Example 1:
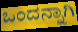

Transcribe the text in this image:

ಒಂದನ್ನಾಗಿ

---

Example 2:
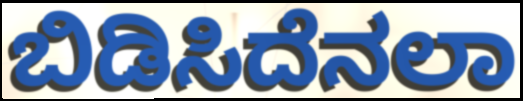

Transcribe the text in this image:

ಬಿಡಿಸಿದೆನಲಾ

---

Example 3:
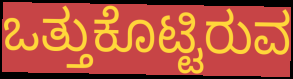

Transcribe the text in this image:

ಒತ್ತುಕೊಟ್ಟಿರುವ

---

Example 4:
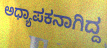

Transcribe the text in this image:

ಅಧ್ಯಾಪಕನಾಗಿದ್ದ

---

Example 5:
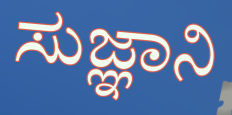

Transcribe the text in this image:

ಸುಜ್ಞಾನಿ